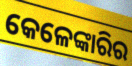
କେଳେଙ୍କାରିର